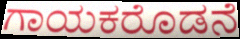
ಗಾಯಕರೊಡನೆ